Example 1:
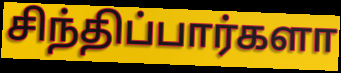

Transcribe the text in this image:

சிந்திப்பார்களா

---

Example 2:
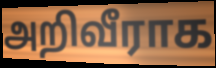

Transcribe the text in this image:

அறிவீராக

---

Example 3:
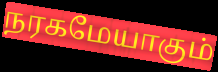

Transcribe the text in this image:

நரகமேயாகும்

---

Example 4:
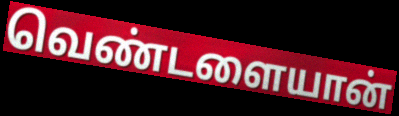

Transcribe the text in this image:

வெண்டளையான்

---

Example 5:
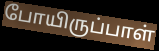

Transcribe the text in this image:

போயிருப்பாள்